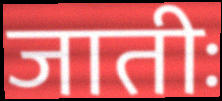
जातीः